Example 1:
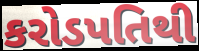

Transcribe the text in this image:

કરોડપતિથી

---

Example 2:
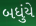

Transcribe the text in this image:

બધુંયે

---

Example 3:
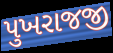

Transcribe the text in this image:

પુખરાજજી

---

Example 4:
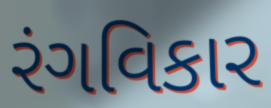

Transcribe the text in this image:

રંગવિકાર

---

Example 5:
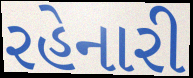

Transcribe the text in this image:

રહેનારી